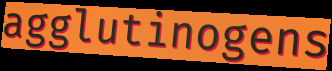
agglutinogens